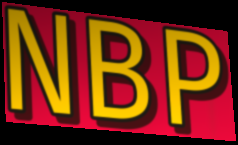
NBP